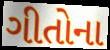
ગીતોના